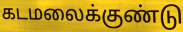
கடமலைக்குண்டு